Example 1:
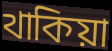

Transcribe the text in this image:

থাকিয়া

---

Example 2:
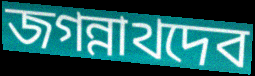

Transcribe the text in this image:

জগন্নাথদেব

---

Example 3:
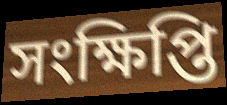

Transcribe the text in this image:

সংক্ষিপ্তি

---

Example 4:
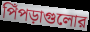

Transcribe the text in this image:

পিঁপড়াগুলোর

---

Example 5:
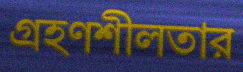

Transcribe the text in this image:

গ্রহণশীলতার